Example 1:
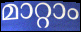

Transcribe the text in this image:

മാറ്റാം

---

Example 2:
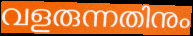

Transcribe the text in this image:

വളരുന്നതിനും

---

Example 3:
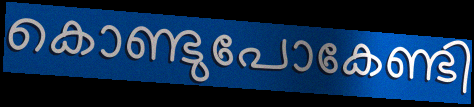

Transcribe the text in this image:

കൊണ്ടുപോകേണ്ടി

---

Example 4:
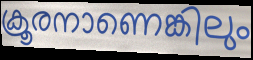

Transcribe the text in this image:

ക്രൂരനാണെങ്കിലും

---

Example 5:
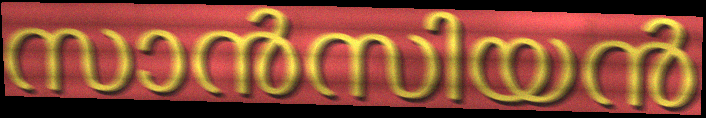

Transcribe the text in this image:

സാൻസിയൻ